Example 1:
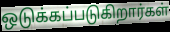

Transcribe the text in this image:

ஒடுக்கப்படுகிறார்கள்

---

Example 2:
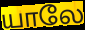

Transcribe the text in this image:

யாலே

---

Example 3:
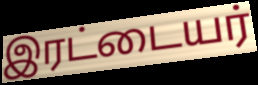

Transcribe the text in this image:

இரட்டையர்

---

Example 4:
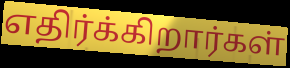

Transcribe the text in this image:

எதிர்க்கிறார்கள்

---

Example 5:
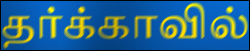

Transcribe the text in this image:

தர்க்காவில்